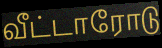
வீட்டாரோடு